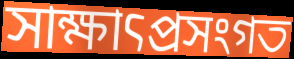
সাক্ষাৎপ্ৰসংগত